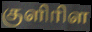
குளிரிள